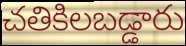
చతికిలబడ్డారు